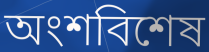
অংশবিশেষ